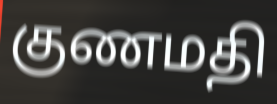
குணமதி